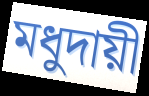
মধুদায়ী